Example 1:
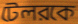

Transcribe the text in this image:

টেলরকে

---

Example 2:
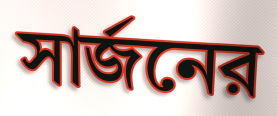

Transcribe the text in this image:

সার্জনের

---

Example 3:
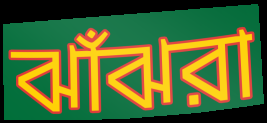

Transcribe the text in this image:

ঝাঁঝরা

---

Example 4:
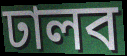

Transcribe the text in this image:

ঢালব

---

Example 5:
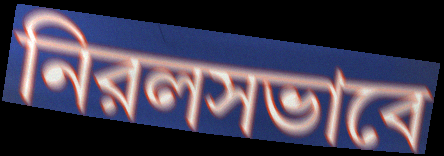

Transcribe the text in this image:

নিরলসভাবে